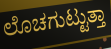
ಲೊಚಗುಟ್ಟುತ್ತಾ